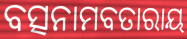
ବତ୍ସନାମବତାରାୟ